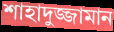
শাহাদুজ্জামান